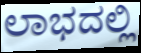
ಲಾಭದಲ್ಲಿ